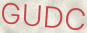
GUDC